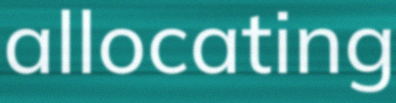
allocating